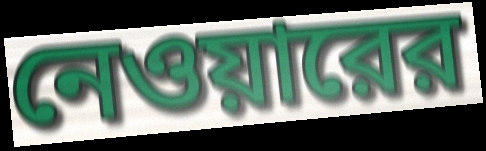
নেওয়ারের